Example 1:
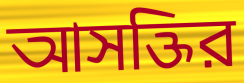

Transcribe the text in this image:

আসক্তির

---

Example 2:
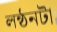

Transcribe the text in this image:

লন্ঠনটা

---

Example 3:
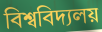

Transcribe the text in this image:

বিশ্ববিদ্যলয়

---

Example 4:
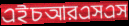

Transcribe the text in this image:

এইচআরএসএস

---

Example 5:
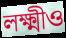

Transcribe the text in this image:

লক্ষ্মীও